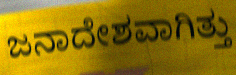
ಜನಾದೇಶವಾಗಿತ್ತು